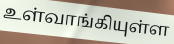
உள்வாங்கியுள்ள